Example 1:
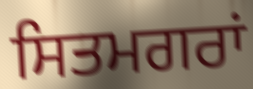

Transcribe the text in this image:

ਸਿਤਮਗਰਾਂ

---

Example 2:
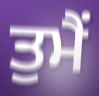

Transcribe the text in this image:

ਤੁਮੈਂ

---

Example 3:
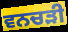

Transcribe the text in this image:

ਵਨਚੜੀ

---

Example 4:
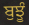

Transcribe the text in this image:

ਬੁਝੂੰ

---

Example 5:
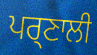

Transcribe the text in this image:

ਪਰ੍ਣਾਲੀ